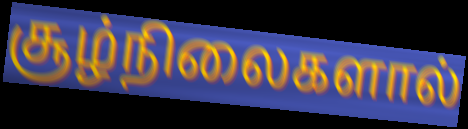
சூழ்நிலைகளால்